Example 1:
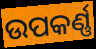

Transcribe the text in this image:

ଉପକର୍ଣ୍ଣ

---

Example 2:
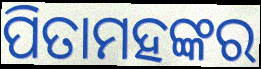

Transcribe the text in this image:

ପିତାମହଙ୍କର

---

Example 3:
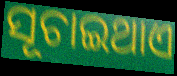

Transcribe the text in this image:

ସୂଚାଇଥାଏ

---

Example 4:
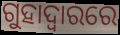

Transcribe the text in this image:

ଗୁହାଦ୍ଵାରରେ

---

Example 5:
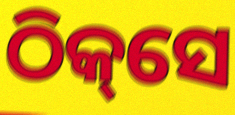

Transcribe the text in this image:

ଠିକ୍‌ସେ